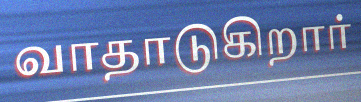
வாதாடுகிறார்